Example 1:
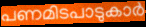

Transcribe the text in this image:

പണമിടപാടുകാർ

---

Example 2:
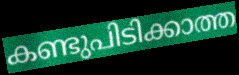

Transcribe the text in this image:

കണ്ടുപിടിക്കാത്ത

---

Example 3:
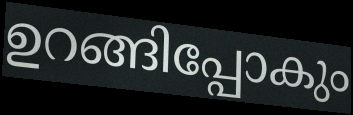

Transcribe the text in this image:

ഉറങ്ങിപ്പോകും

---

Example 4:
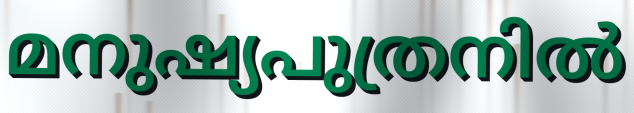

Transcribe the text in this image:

മനുഷ്യപുത്രനിൽ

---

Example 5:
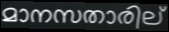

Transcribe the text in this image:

മാനസതാരില്